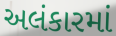
અલંકારમાં